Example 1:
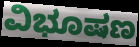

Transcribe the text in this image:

ವಿಭೂಷಣ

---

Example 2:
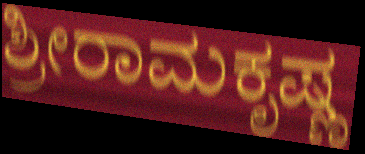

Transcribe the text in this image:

ಶ್ರೀರಾಮಕೃಷ್ಣ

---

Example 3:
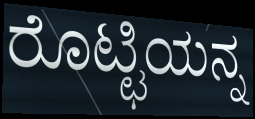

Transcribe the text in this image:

ರೊಟ್ಟಿಯನ್ನ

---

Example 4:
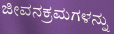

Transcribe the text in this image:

ಜೀವನಕ್ರಮಗಳನ್ನು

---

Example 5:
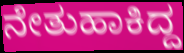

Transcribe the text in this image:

ನೇತುಹಾಕಿದ್ದ